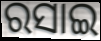
ରସାଇ